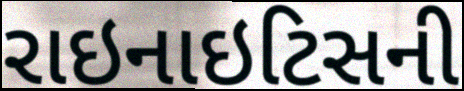
રાઇનાઇટિસની